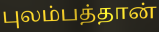
புலம்பத்தான்